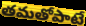
తమతోపాటే